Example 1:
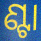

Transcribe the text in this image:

ଣ୍ଟା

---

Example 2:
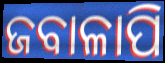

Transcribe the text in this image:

ଜବାଳାପି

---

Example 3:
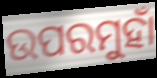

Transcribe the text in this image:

ଉପରମୁହାଁ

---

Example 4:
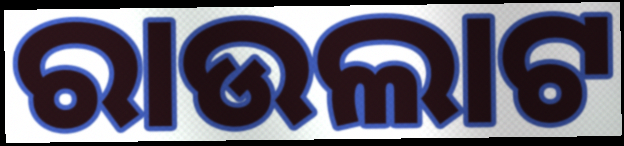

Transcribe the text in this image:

ରାଉଲାଟ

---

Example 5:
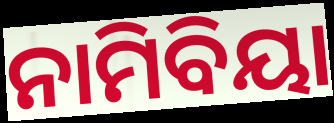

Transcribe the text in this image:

ନାମିବିୟା